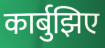
कार्बुझिए